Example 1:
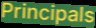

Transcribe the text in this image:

Principals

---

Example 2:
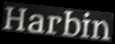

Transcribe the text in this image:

Harbin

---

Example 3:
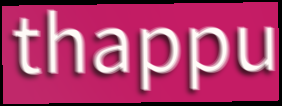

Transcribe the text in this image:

thappu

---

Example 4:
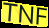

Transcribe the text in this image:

TNF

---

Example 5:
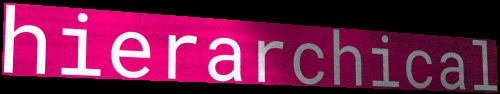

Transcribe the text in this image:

hierarchical